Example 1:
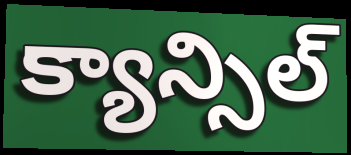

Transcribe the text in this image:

క్యాన్సిల్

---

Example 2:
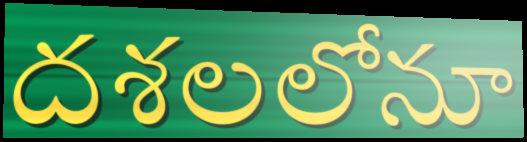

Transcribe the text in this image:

దశలలోనూ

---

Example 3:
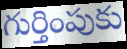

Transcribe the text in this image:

గుర్తింపుకు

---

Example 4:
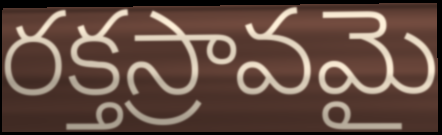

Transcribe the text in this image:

రక్తస్రావమై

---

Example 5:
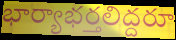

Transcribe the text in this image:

భార్యాభర్తలిద్దరూ